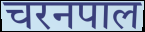
चरनपाल